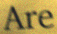
Are